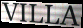
VILLA